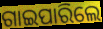
ଗାଇପାରିଲେ